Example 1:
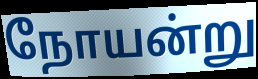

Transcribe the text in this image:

நோயன்று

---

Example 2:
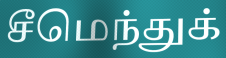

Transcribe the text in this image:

சீமெந்துக்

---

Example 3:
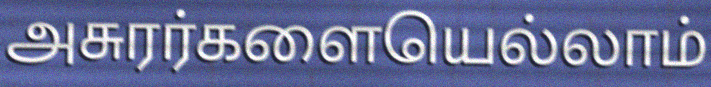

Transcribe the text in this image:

அசுரர்களையெல்லாம்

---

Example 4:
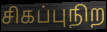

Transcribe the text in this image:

சிகப்புநிற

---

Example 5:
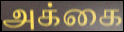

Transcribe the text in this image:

அக்கை